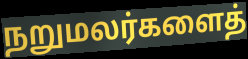
நறுமலர்களைத்